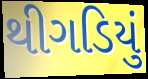
થીગડિયું